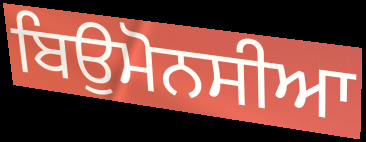
ਬਿਉਮੋਨਸੀਆ